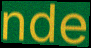
nde